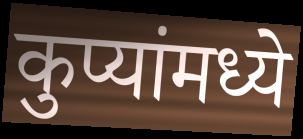
कुप्यांमध्ये